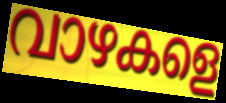
വാഴകളെ